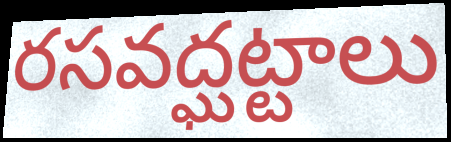
రసవద్ఘట్టాలు